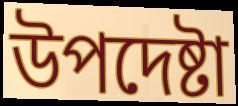
উপদেষ্টা